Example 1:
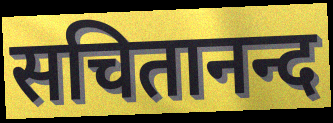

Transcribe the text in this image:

सचितानन्द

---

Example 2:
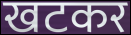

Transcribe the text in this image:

खटकर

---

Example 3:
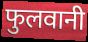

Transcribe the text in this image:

फुलवानी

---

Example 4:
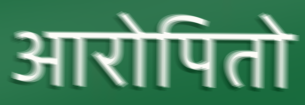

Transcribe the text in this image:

आरोपितो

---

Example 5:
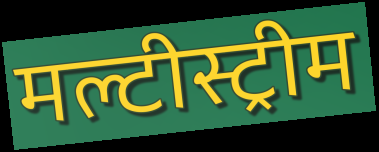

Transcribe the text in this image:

मल्टीस्ट्रीम